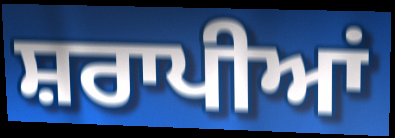
ਸ਼ਰਾਪੀਆਂ